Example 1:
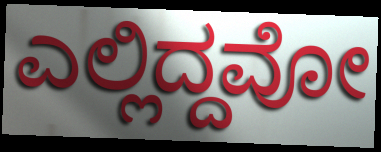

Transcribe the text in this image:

ಎಲ್ಲಿದ್ದವೋ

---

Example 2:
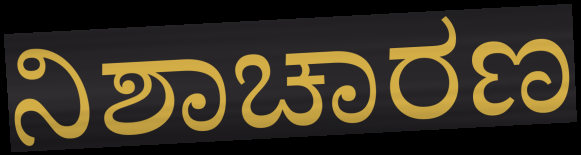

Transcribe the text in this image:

ನಿಶಾಚಾರಣ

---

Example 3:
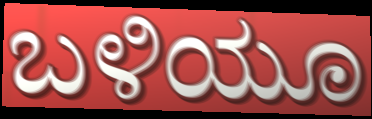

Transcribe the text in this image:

ಬಳಿಯೂ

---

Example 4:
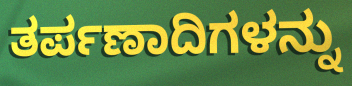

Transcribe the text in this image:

ತರ್ಪಣಾದಿಗಳನ್ನು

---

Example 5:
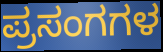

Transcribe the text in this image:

ಪ್ರಸಂಗಗಳ